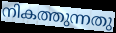
നികത്തുന്നതു